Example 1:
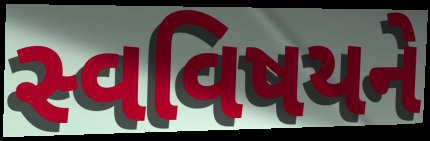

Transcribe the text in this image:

સ્વવિષયને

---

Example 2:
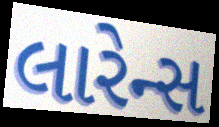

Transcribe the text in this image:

લારેન્સ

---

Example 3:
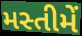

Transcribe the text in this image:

મસ્તીમેં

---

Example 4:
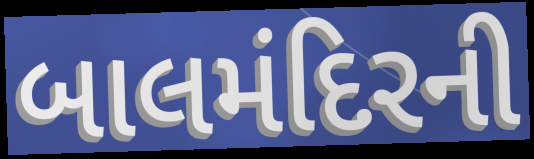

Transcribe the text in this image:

બાલમંદિરની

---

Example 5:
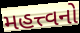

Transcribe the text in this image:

મહત્ત્વનો